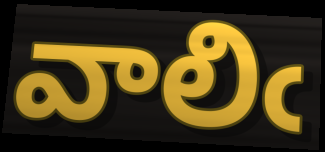
వాలిఁ